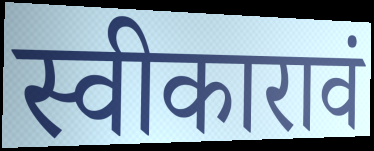
स्वीकारावं